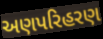
અણપરિહરણ